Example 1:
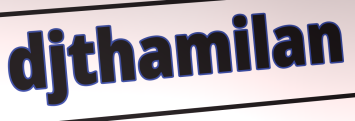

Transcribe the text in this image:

djthamilan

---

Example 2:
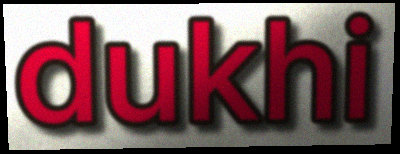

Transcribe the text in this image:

dukhi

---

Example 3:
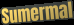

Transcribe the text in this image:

Sumermal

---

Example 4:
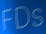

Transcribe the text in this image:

FDs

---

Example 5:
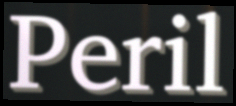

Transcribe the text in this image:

Peril